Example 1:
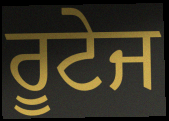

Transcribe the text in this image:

ਰੂਟੇਜ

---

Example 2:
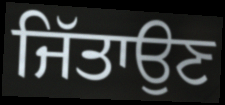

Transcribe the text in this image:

ਜਿੱਤਾਉਣ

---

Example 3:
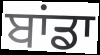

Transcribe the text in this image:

ਬਾਂਡਾ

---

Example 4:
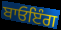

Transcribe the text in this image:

ਬਾਓਇੰਗ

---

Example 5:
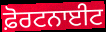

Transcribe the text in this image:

ਫ਼ੋਰਟਨਾਈਟ